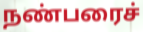
நண்பரைச்